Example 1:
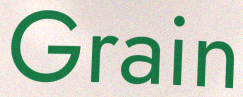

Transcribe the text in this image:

Grain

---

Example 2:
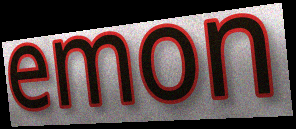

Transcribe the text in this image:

emon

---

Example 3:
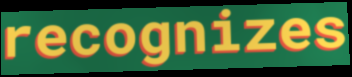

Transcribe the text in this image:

recognizes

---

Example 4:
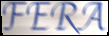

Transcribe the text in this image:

FERA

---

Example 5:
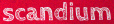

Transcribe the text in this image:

scandium